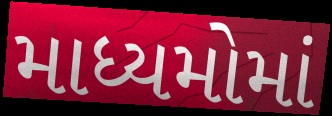
માધ્યમોમાં